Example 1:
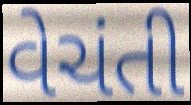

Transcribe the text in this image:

વેચંતી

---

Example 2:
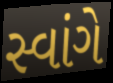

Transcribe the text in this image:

સ્વાંગે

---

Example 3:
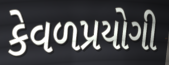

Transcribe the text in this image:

કેવળપ્રયોગી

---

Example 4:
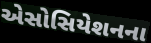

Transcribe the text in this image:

એસોસિયેશનના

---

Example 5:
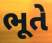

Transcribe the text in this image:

ભૂતે